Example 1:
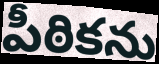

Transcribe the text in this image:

పీఠికను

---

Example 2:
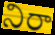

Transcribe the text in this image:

నిరా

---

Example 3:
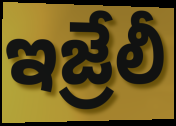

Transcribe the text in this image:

ఇజ్రేలీ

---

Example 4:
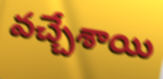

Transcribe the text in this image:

వచ్చేశాయి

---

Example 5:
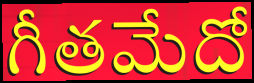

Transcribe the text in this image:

గీతమేదో